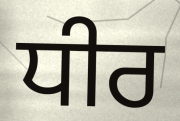
ਧੀਰ